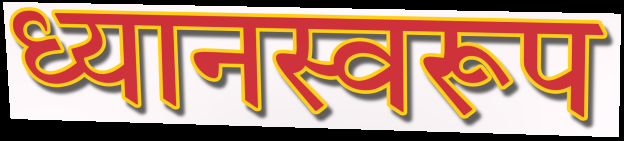
ध्यानस्वरूप